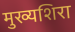
मुख्यशिरा